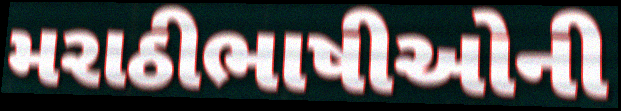
મરાઠીભાષીઓની